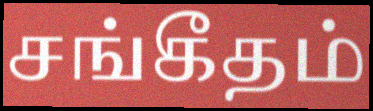
சங்கீதம்